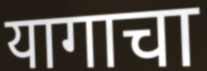
यागाचा